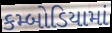
કમ્બોડિયામાં